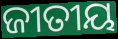
ଜୀତୀୟ